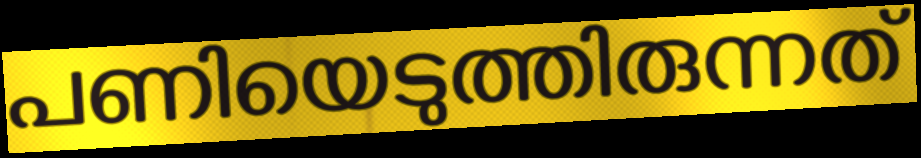
പണിയെടുത്തിരുന്നത്